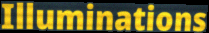
Illuminations